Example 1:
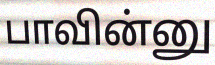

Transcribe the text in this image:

பாவின்னு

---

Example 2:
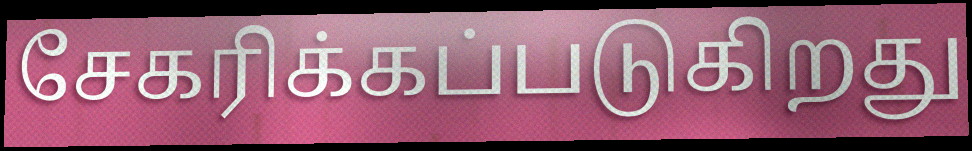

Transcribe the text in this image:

சேகரிக்கப்படுகிறது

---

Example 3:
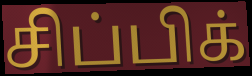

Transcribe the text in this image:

சிப்பிக்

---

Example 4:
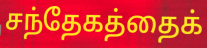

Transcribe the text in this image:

சந்தேகத்தைக்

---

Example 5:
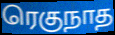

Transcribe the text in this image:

ரெகுநாத